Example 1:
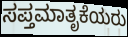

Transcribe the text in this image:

ಸಪ್ತಮಾತೃಕೆಯರು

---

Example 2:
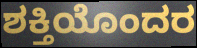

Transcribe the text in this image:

ಶಕ್ತಿಯೊಂದರ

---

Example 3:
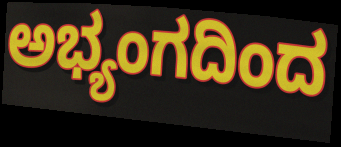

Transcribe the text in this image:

ಅಭ್ಯಂಗದಿಂದ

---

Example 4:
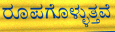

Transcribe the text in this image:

ರೂಪಗೊಳ್ಳುತ್ತವೆ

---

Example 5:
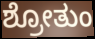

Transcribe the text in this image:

ಶ್ರೋತುಂ